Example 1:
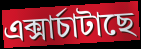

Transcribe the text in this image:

এক্সাৰ্চাটাছে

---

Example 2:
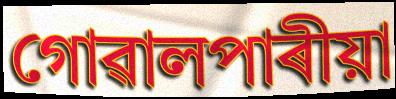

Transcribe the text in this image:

গোৱালপাৰীয়া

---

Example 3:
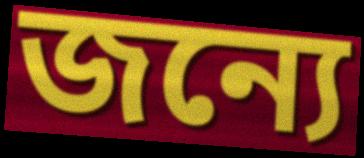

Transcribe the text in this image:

জন্যে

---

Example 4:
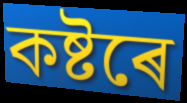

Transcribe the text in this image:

কষ্টৰে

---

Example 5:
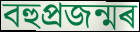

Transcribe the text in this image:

বহুপ্ৰজন্মৰ